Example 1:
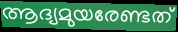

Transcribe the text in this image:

ആദ്യമുയരേണ്ടത്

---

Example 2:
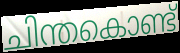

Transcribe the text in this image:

ചിന്തകൊണ്ട്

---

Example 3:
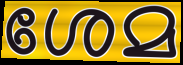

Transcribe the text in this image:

ശേമ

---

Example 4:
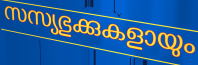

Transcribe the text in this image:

സസ്യഭുക്കുകളായും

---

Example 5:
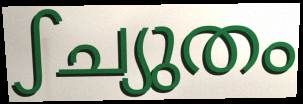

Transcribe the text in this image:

ഽച്യുതം